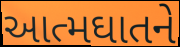
આત્મઘાતને